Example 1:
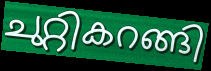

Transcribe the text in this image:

ചുറ്റികറങ്ങി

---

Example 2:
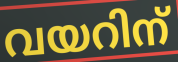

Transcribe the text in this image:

വയറിന്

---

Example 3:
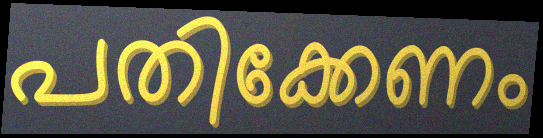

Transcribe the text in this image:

പതിക്കേണം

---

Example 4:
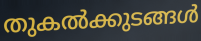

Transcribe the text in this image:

തുകൽക്കുടങ്ങൾ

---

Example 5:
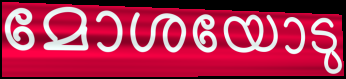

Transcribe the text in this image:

മോശയോടു